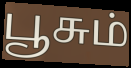
பூசும்